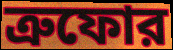
ত্রুফোর